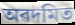
অৱদমিত